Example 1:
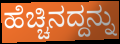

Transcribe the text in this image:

ಹೆಚ್ಚಿನದ್ದನ್ನು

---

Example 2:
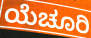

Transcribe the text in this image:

ಯೆಚೂರಿ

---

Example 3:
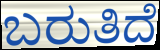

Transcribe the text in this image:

ಬರುತಿದೆ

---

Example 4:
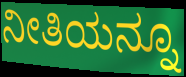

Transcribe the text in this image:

ನೀತಿಯನ್ನೂ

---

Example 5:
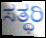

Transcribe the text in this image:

ಸತ್ಥರಿ